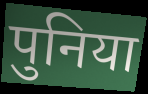
पुनिया